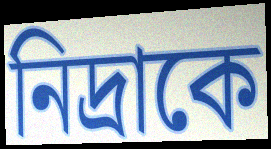
নিদ্রাকে